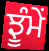
ਝੂੰਮੇਂ